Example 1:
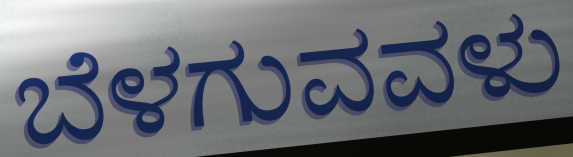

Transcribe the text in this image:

ಬೆಳಗುವವಳು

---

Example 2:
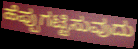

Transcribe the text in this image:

ಹೆಪ್ಪುಗಟ್ಟಿಸುವುದು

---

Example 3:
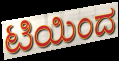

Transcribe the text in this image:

ಟಿಯಿಂದ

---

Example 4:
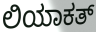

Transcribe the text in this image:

ಲಿಯಾಕತ್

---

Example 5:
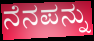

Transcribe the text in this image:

ನೆನಪನ್ನು